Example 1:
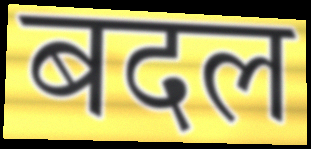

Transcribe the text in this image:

बदल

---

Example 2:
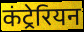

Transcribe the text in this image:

कंट्रेरियन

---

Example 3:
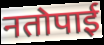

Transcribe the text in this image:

नतोपाई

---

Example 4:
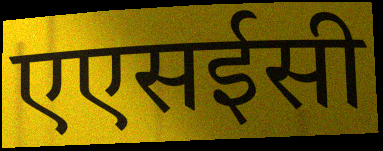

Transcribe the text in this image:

एएसईसी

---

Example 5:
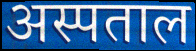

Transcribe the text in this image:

अस्पताल